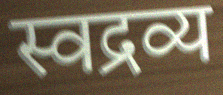
स्वद्रव्य